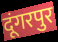
दूंगरपुर